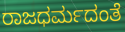
ರಾಜಧರ್ಮದಂತೆ